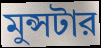
মুন্সটার